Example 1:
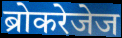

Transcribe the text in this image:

ब्रोकरेजेज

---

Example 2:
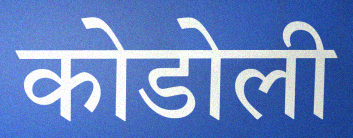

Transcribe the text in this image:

कोडोली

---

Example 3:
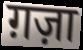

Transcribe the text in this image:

ग़ज़ा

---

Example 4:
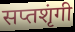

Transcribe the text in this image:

सप्तशृंगी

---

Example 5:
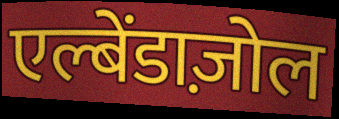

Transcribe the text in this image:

एल्बेंडाज़ोल